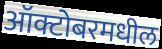
ऑक्टोबरमधील